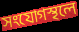
সংযোগস্থলে